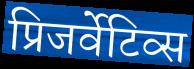
प्रिजर्वेटिव्स